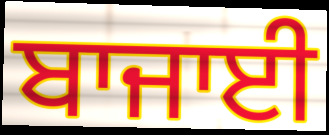
ਬਾਜਾਈ